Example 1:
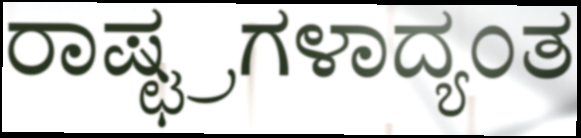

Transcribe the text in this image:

ರಾಷ್ಟ್ರಗಳಾದ್ಯಂತ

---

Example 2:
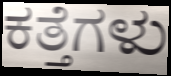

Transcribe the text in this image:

ಕತ್ತೆಗಳು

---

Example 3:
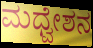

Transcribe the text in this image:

ಮಧ್ವೇಶನ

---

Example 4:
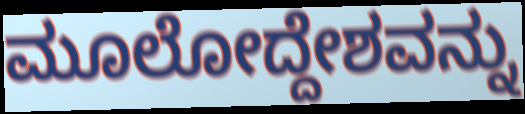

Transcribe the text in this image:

ಮೂಲೋದ್ದೇಶವನ್ನು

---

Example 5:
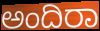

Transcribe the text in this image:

ಅಂದಿರಾ